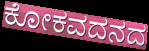
ಕೋಕವದನದ